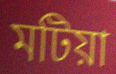
মটিয়া